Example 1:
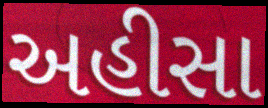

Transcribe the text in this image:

અહીસા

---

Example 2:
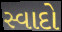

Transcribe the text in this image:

સ્વાદો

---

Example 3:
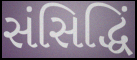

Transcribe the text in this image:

સંસિદ્ધિં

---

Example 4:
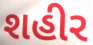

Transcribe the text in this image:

શહીર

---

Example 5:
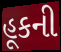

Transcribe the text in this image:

હૂકની